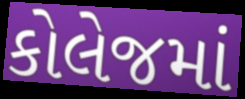
કોલેજમાં